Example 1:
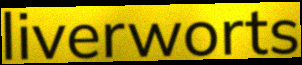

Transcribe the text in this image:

liverworts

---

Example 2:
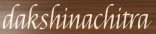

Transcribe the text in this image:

dakshinachitra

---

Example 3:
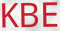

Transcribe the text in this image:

KBE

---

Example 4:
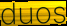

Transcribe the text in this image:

duos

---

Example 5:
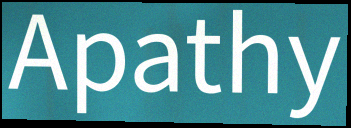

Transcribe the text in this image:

Apathy